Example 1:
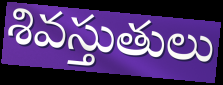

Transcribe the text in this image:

శివస్తుతులు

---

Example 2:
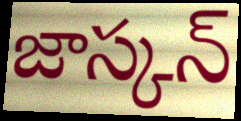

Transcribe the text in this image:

జాస్కన్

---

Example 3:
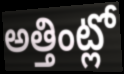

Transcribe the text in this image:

అత్తింట్లో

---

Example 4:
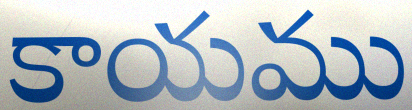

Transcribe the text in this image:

కాయము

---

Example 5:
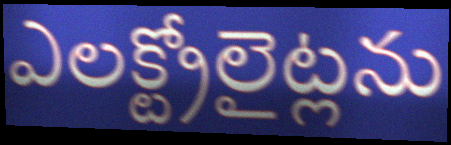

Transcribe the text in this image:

ఎలక్ట్రోలైట్లను